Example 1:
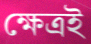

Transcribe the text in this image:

ক্ষেত্ৰই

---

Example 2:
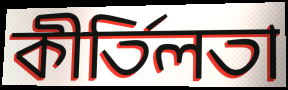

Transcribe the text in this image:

কীৰ্তিলতা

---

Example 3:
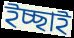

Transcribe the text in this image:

ইচ্ছাই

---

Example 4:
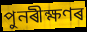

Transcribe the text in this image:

পুনৰীক্ষণৰ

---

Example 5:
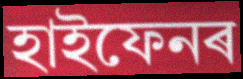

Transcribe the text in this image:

হাইফেনৰ